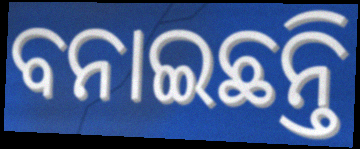
ବନାଇଛନ୍ତି